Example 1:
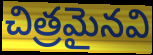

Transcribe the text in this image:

చిత్రమైనవి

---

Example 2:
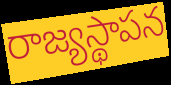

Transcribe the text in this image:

రాజ్యస్థాపన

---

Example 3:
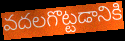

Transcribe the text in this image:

వదలగొట్టడానికి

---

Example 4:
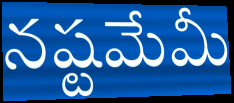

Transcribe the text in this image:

నష్టమేమీ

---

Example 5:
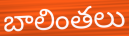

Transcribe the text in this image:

బాలింతలు